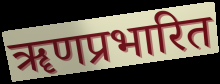
ॠणप्रभारित